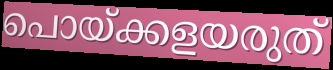
പൊയ്ക്കളയരുത്